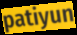
patiyun